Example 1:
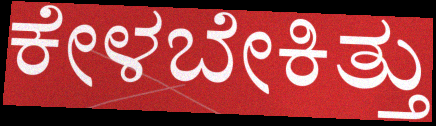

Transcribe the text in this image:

ಕೇಳಬೇಕಿತ್ತು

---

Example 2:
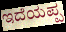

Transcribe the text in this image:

ಇದೆಯಪ್ಪ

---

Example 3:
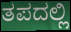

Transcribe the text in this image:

ತಪದಲ್ಲಿ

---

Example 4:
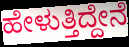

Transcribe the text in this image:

ಹೇಳುತ್ತಿದ್ದೇನೆ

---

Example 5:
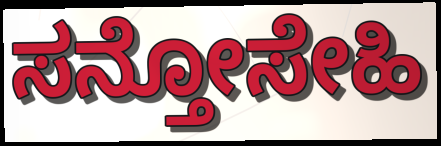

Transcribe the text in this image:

ಸನ್ತೋಸೇಹಿ